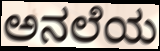
ಅನಲೆಯ